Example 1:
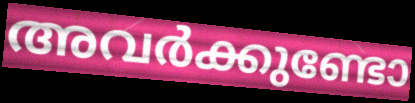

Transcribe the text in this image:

അവർക്കുണ്ടോ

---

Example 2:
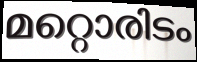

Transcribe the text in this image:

മറ്റൊരിടം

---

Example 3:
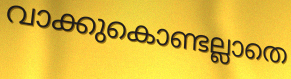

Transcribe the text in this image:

വാക്കുകൊണ്ടല്ലാതെ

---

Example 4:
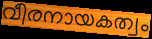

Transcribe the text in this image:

വീരനായകത്വം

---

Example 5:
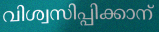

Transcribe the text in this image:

വിശ്വസിപ്പിക്കാന്